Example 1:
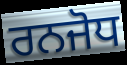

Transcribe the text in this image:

ਰਨਜੋਧ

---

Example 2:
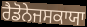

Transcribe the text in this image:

ਰੈਡੋਨੇਜਸਕਾਯਾ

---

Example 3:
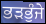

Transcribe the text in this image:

ਭੜਭੁੰਜੇ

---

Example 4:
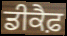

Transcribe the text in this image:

ਡੀਕੈਫ਼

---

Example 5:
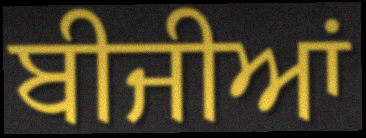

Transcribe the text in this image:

ਬੀਜੀਆਂ